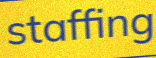
staffing